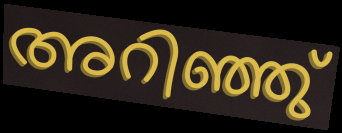
അറിഞ്ഞു്